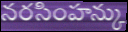
నరసింహన్కు